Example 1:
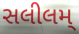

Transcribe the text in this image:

સલીલમ્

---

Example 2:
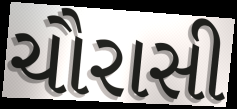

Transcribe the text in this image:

ચૌરાસી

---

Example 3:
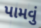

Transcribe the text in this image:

પામવું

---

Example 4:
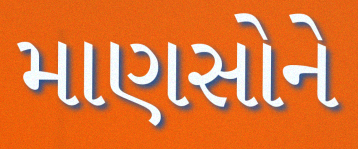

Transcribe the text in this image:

માણસોને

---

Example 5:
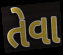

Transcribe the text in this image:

તેવા